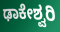
ಢಾಕೇಶ್ವರಿ